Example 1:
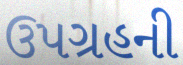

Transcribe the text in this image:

ઉપગ્રહની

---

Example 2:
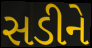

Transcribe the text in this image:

સડીને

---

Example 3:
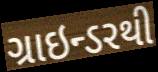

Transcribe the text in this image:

ગ્રાઇન્ડરથી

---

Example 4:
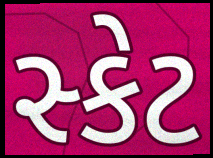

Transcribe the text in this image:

સ્કેટ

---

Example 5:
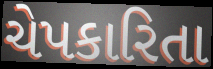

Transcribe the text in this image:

ચેપકારિતા